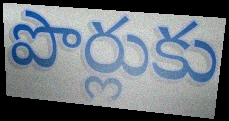
పొర్లుకు